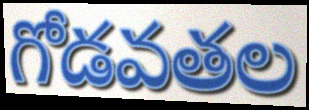
గోడవతల